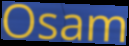
Osam